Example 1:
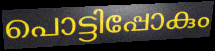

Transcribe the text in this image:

പൊട്ടിപ്പോകും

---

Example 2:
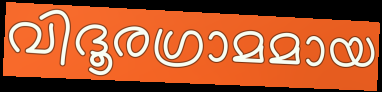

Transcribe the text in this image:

വിദൂരഗ്രാമമായ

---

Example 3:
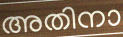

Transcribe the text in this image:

അതിനാ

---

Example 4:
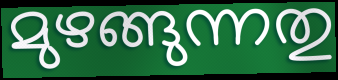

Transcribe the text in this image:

മുഴങ്ങുന്നതു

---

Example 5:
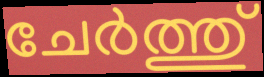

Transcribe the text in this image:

ചേർത്തു്